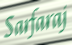
Sarfaraj